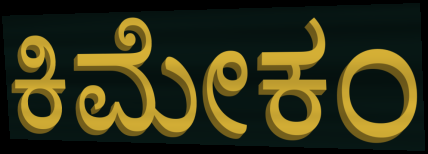
ಕಿಮೇಕಂ